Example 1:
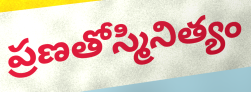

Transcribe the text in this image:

ప్రణతోస్మినిత్యం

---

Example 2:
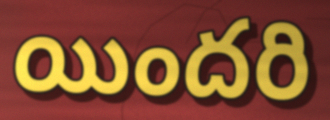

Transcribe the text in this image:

యిందరి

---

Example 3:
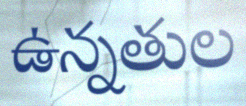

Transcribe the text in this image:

ఉన్నతుల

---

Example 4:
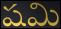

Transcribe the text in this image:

షమి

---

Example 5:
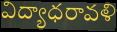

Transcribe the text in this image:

విద్యాధరావళి